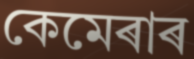
কেমেৰাৰ